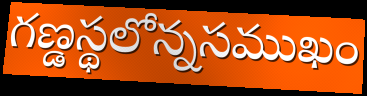
గణ్డస్థలోన్నసముఖం